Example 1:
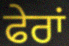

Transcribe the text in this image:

ਫੇਰਾਂ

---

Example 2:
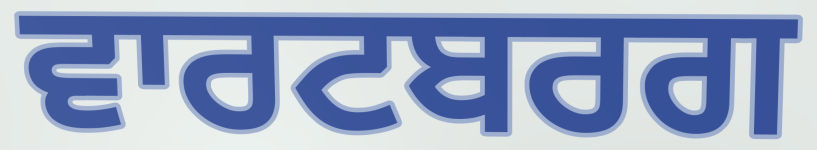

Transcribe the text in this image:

ਵਾਰਟਬਰਗ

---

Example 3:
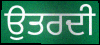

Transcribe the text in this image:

ਉਤਰਦੀ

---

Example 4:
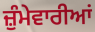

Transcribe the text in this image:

ਜ਼ੁੰਮੇਵਾਰੀਆਂ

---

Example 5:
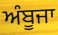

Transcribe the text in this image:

ਅੰਬੂਜਾ